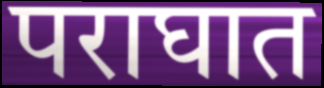
पराघात